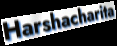
Harshacharita